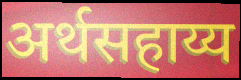
अर्थसहाय्य